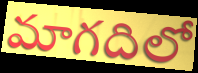
మాగదిలో